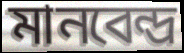
মানবেন্দ্র